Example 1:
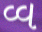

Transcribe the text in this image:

વ્વ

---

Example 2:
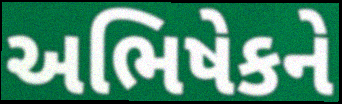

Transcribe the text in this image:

અભિષેકને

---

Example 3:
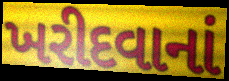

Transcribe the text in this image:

ખરીદવાનાં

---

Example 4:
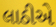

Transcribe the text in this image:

લાઠીએ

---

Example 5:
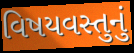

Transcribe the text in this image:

વિષયવસ્તુનું